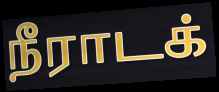
நீராடக்